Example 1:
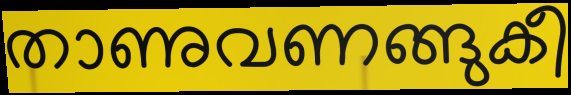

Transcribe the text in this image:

താണുവണങ്ങുകീ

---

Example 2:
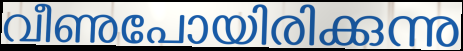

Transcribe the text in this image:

വീണുപോയിരിക്കുന്നു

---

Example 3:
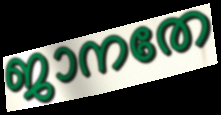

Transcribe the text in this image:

ജാനതേ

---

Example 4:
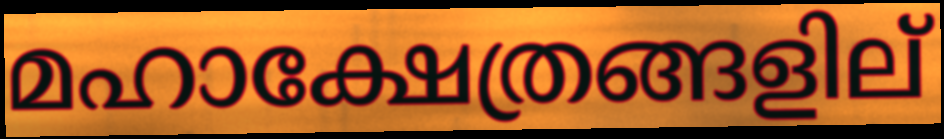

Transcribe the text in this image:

മഹാക്ഷേത്രങ്ങളില്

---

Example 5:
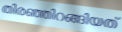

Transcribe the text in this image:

തിരഞ്ഞിറങ്ങിയത്